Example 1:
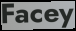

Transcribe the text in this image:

Facey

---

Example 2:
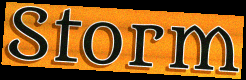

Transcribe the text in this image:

Storm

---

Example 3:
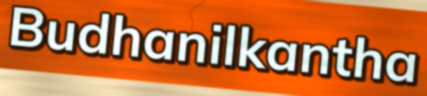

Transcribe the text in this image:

Budhanilkantha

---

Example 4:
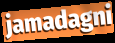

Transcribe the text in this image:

jamadagni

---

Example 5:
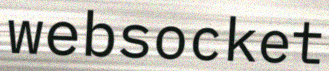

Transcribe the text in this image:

websocket